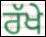
ਰੱਖੇ